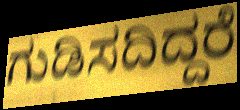
ಗುಡಿಸದಿದ್ದರೆ